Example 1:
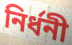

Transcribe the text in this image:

নির্ধনী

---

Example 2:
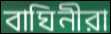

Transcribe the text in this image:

বাঘিনীরা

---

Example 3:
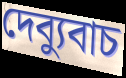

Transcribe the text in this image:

দেব্যুবাচ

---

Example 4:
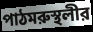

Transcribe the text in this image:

পাঠমরুস্থলীর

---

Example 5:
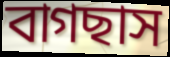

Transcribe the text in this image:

বাগছাস